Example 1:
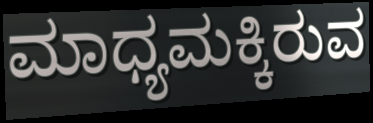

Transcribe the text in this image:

ಮಾಧ್ಯಮಕ್ಕಿರುವ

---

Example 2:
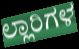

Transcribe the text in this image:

ಲ್ಲಾರಿಗಳ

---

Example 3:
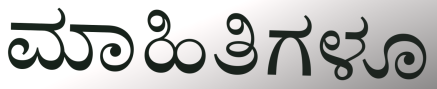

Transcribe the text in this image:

ಮಾಹಿತಿಗಳೂ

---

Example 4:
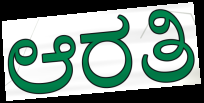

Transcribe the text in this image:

ಆರತಿ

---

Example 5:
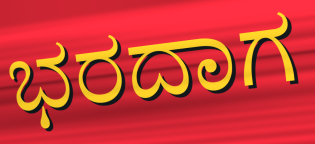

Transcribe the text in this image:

ಭರದಾಗ